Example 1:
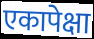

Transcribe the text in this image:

एकापेक्षा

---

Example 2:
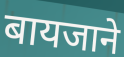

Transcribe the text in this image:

बायजाने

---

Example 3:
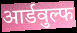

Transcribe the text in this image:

आर्डवुल्फ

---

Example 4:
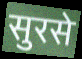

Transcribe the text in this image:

सुरसे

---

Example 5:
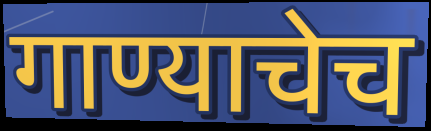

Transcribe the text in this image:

गाण्याचेच